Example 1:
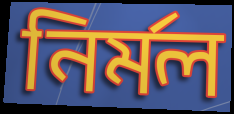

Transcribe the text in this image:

নিৰ্মল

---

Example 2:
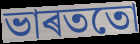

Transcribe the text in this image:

ভাৰততো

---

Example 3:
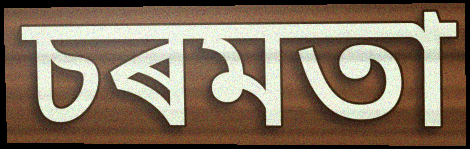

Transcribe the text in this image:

চৰমতা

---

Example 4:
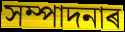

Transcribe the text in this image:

সম্পাদনাৰ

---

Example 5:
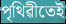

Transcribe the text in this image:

পৃথিৱীতেই